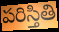
పరిస్తితి